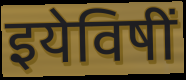
इयेविषीं